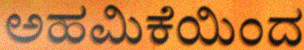
ಅಹಮಿಕೆಯಿಂದ